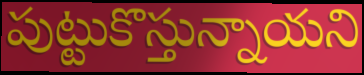
పుట్టుకొస్తున్నాయని